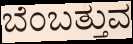
ಬೆಂಬತ್ತುವ